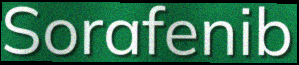
Sorafenib